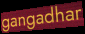
gangadhar